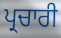
ਪ੍ਰਚਾਰੀ